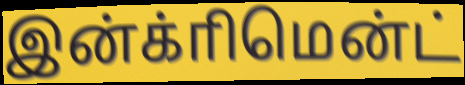
இன்க்ரிமென்ட்